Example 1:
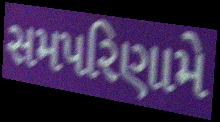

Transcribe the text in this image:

સમપરિણામે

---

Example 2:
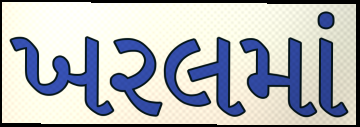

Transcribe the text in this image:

ખરલમાં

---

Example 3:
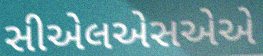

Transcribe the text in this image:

સીએલએસએએ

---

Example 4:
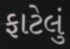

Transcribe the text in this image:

ફાટેલું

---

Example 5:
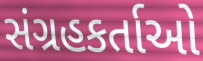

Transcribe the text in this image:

સંગ્રહકર્તાઓ